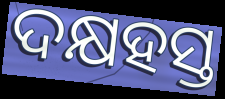
ଦକ୍ଷହସ୍ତ